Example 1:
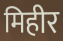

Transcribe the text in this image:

मिहीर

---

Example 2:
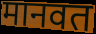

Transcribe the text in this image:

मानवत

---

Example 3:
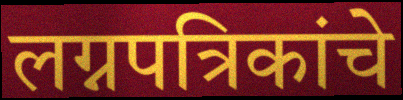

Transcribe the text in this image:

लग्नपत्रिकांचे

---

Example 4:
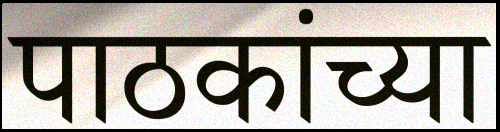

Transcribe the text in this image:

पाठकांच्या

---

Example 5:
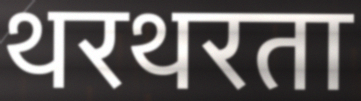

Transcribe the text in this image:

थरथरता